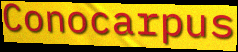
Conocarpus